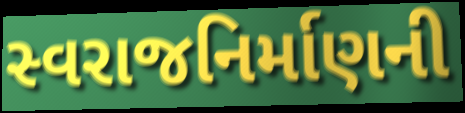
સ્વરાજનિર્માણની